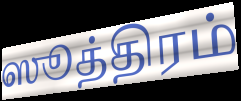
ஸூத்திரம்